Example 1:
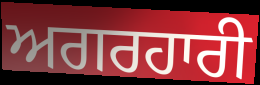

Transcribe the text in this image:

ਅਗਰਹਾਰੀ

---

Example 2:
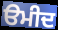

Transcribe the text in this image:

ੳਮੀਦ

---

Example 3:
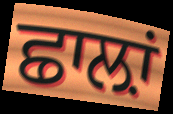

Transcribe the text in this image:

ਛਾਲ਼ਾਂ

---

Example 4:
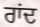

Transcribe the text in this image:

ਰਾਂਦ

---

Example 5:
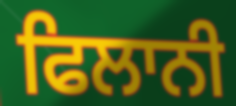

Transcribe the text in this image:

ਫਿਲਾਨੀ